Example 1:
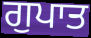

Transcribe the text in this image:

ਗੁਪਾਤ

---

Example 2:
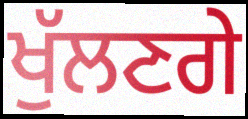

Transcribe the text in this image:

ਖੁੱਲਣਗੇ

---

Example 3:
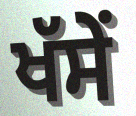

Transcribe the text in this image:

ਖੱਸੇਂ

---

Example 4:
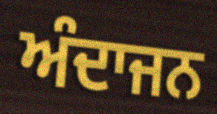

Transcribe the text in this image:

ਅੰਦਾਜਨ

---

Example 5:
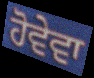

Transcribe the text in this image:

ਹੋਵੇਵਾ